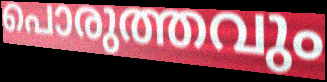
പൊരുത്തവും